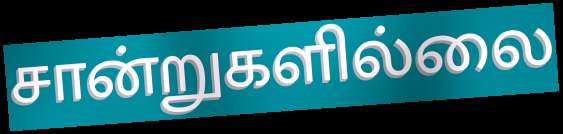
சான்றுகளில்லை